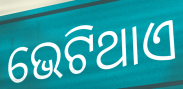
ଭେଟିଥାଏ